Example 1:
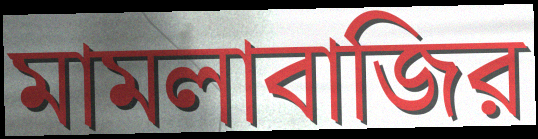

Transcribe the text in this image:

মামলাবাজির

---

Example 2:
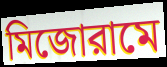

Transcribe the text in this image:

মিজোরামে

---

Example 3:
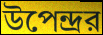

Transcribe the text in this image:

উপেন্দ্রর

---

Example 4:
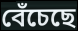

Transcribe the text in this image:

বেঁচেছে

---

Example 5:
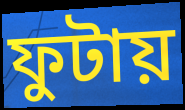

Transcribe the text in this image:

ফুটায়